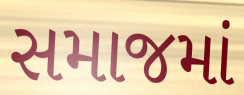
સમાજમાં